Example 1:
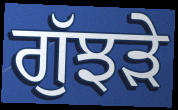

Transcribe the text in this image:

ਗੁੱਝੜੇ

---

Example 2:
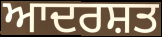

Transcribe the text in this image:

ਆਦਰਸ਼ਤ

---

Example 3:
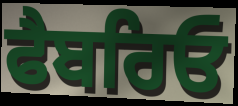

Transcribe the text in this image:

ਫੈਬਰਿਓ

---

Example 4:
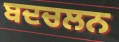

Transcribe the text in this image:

ਬਦਚਲਨ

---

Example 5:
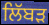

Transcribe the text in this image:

ਲਿੱਬੜ